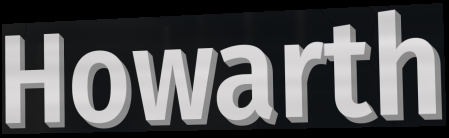
Howarth